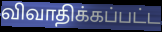
விவாதிக்கப்பட்ட